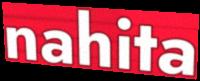
nahita